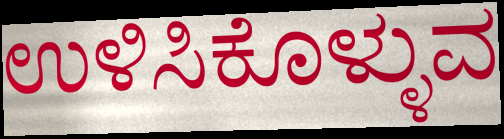
ಉಳಿಸಿಕೊಳ್ಳುವ